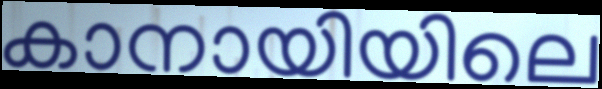
കാനായിയിലെ